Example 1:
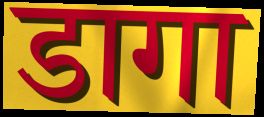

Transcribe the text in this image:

डागा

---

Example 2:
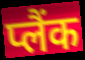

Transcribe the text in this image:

प्लैंक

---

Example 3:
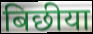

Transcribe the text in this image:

बिछीया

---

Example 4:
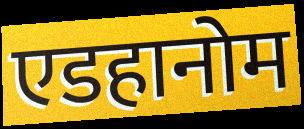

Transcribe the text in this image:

एडहानोम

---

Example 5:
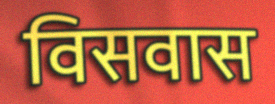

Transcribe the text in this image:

विसवास